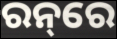
ରନ୍‌ରେ